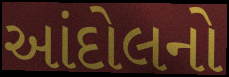
આંદોલનો